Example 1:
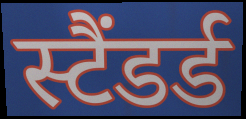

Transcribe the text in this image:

स्टैंडर्ड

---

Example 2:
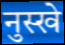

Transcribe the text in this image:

नुस्खे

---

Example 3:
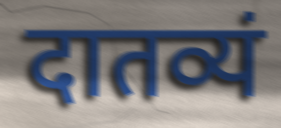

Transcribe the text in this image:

दातव्यं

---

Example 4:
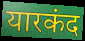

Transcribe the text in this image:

यारकंद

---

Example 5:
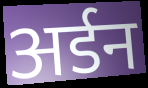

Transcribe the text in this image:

अर्डन